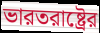
ভারতরাষ্ট্রের